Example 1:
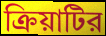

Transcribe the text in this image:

ক্রিয়াটির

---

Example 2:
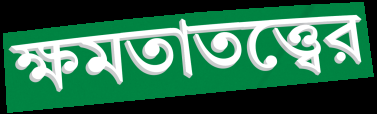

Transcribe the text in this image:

ক্ষমতাতত্ত্বের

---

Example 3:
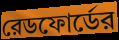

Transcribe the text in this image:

রেডফোর্ডের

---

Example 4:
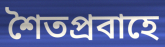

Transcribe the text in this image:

শৈতপ্রবাহে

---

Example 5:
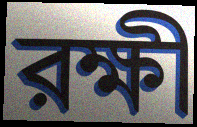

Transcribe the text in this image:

রক্ষী